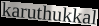
karuthukkal